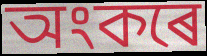
অংকৰে